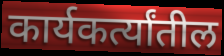
कार्यकर्त्यांतील